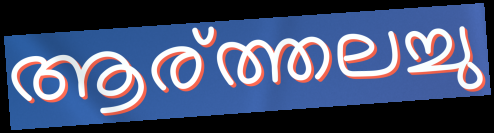
ആര്ത്തലച്ചു